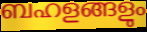
ബഹളങ്ങളും